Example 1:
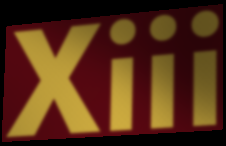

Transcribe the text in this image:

Xiii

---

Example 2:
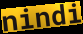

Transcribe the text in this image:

nindi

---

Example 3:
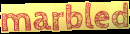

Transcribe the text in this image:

marbled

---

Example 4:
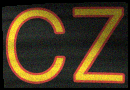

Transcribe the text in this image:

CZ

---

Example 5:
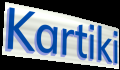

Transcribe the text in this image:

Kartiki